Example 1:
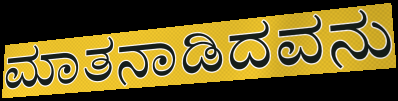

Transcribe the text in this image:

ಮಾತನಾಡಿದವನು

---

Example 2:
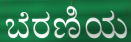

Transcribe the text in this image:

ಬೆರಣಿಯ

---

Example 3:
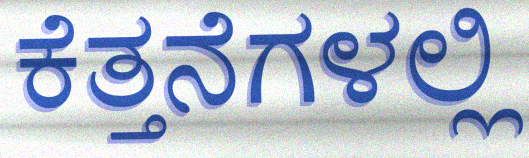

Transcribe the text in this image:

ಕೆತ್ತನೆಗಳಲ್ಲಿ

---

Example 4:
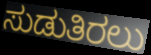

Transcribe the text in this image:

ಸುಡುತಿರಲು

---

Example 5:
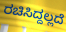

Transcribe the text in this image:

ರಚಿಸಿದ್ದಲ್ಲದೆ